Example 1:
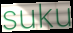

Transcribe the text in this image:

suku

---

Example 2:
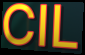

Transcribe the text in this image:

CIL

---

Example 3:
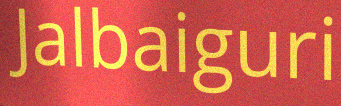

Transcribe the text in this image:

Jalbaiguri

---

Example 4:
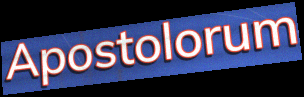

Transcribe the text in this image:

Apostolorum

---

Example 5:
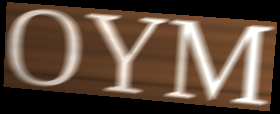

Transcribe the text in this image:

OYM